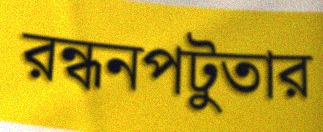
রন্ধনপটুতার